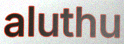
aluthu